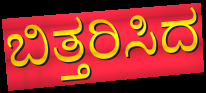
ಬಿತ್ತರಿಸಿದ